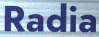
Radia